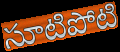
సూటిపోటి